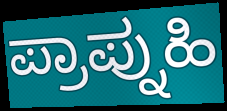
ಪ್ರಾಪ್ನುಹಿ